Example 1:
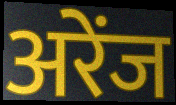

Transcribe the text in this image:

अरेंज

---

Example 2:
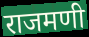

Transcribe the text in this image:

राजमणी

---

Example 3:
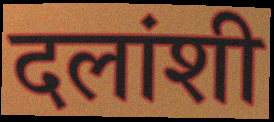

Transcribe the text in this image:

दलांशी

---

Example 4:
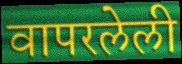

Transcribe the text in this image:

वापरलेली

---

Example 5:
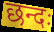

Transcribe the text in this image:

छन्दः